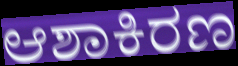
ಆಶಾಕಿರಣ